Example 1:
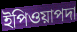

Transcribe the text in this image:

ইপিওয়াপদা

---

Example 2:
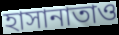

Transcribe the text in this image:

হাসানাতাও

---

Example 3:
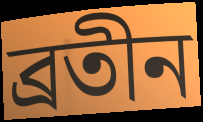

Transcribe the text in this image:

ব্রতীন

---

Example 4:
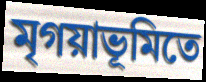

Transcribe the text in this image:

মৃগয়াভূমিতে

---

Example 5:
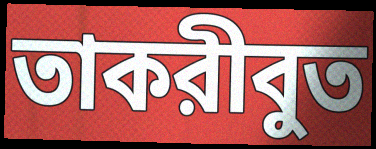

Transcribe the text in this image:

তাকরীবুত